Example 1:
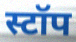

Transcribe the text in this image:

स्टॉप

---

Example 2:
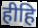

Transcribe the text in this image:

हीहि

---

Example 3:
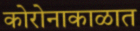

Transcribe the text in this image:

कोरोनाकाळात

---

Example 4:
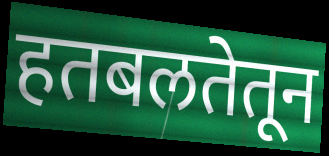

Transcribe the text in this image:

हतबलतेतून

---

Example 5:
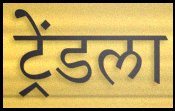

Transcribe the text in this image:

ट्रेंडला